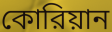
কোরিয়ান